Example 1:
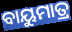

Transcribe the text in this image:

ବାୟୁମାତ୍ର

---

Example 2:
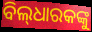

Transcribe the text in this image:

ବିଲ୍‌ଧାରକଙ୍କୁ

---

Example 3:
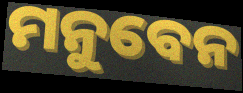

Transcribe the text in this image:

ମନୁବେନ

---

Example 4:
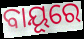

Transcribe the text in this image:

ବାୟୂରେ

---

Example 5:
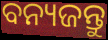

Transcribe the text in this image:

ବନ୍ୟଜନ୍ତୁ